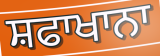
ਸ਼ਫਾਖਾਨਾ